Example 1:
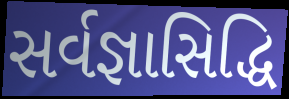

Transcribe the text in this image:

સર્વજ્ઞાસિદ્ધિ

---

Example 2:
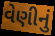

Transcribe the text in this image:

વેણીનું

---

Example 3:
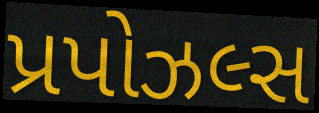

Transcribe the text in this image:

પ્રપોઝલ્સ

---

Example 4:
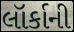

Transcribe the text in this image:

લૉર્કાની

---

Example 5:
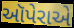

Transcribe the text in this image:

ઑપેરાએ